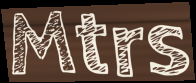
Mtrs